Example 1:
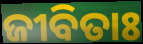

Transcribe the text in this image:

ଜୀବିତାଃ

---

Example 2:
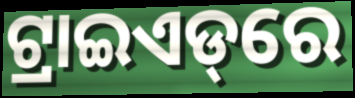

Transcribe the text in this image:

ଟ୍ରାଇଏଡ୍‌ରେ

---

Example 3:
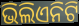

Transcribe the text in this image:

ଭିଲିଏନିଟି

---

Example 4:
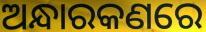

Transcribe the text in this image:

ଅନ୍ଧାରକଣରେ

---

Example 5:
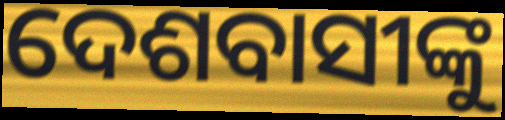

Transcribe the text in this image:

ଦେଶବାସୀଙ୍କୁ